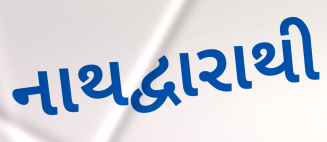
નાથદ્વારાથી